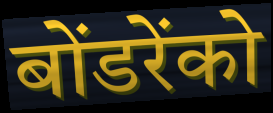
बोंडरेंको